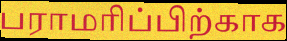
பராமரிப்பிற்காக